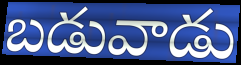
బడువాడు